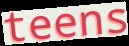
teens